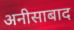
अनीसाबाद